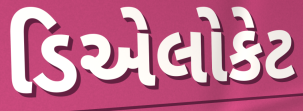
ડિએલોકેટ